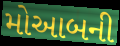
મોઆબની